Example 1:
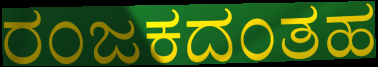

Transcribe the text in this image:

ರಂಜಕದಂತಹ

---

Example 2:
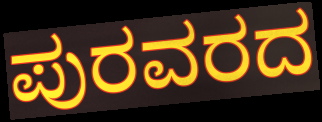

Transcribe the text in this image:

ಪುರವರದ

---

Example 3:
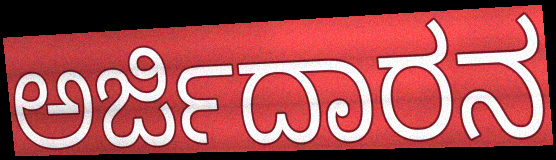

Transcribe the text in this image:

ಅರ್ಜಿದಾರನ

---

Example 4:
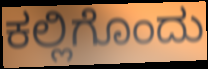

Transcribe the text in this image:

ಕಲ್ಲಿಗೊಂದು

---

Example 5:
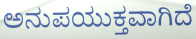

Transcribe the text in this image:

ಅನುಪಯುಕ್ತವಾಗಿದೆ